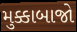
મુક્કાબાજો